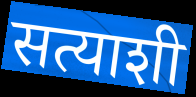
सत्याशी